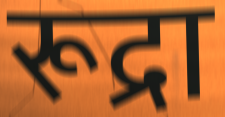
रूद्रा